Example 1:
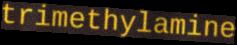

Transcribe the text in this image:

trimethylamine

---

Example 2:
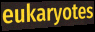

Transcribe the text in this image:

eukaryotes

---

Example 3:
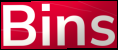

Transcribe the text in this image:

Bins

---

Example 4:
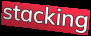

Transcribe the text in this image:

stacking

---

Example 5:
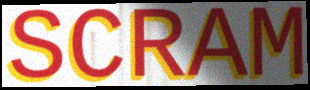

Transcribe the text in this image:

SCRAM